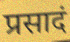
प्रसादं